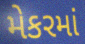
મેકરમાં